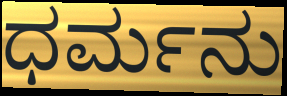
ಧರ್ಮನು